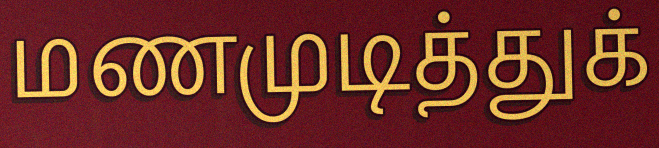
மணமுடித்துக்